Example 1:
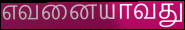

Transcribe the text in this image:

எவனையாவது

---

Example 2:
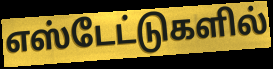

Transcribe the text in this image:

எஸ்டேட்டுகளில்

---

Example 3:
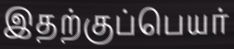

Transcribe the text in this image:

இதற்குப்பெயர்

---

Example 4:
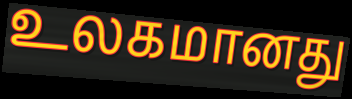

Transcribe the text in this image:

உலகமானது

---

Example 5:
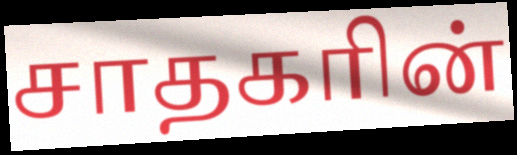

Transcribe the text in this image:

சாதகரின்